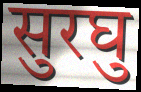
सुरघु